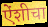
ऐंशीचा